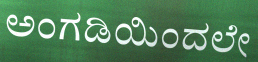
ಅಂಗಡಿಯಿಂದಲೇ